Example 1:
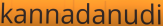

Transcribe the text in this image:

kannadanudi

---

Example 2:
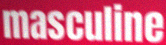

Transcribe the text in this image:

masculine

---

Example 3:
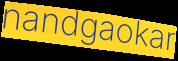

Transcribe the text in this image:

nandgaokar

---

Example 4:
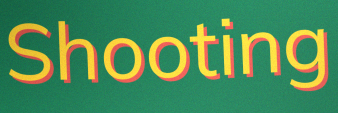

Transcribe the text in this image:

Shooting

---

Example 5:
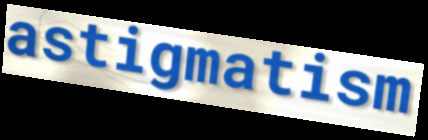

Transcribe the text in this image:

astigmatism